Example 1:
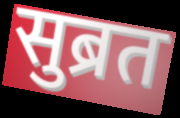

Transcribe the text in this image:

सुब्रत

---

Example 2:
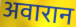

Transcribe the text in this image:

अवारान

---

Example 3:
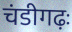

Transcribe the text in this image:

चंडीगढ़ः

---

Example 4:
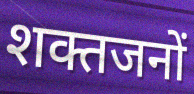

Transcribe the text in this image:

शक्तजनों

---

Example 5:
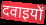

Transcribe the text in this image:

दवाइयों